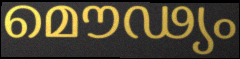
മൌഢ്യം